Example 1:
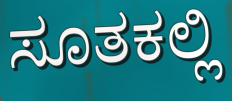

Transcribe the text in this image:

ಸೂತಕಲ್ಲಿ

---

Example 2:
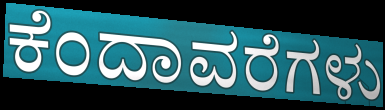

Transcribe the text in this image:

ಕೆಂದಾವರೆಗಳು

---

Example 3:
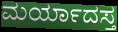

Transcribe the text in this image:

ಮರ್ಯಾದಸ್ತ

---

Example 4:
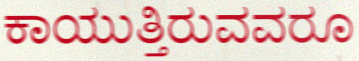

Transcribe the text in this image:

ಕಾಯುತ್ತಿರುವವರೂ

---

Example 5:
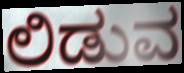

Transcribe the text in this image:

ಲಿಡುವ